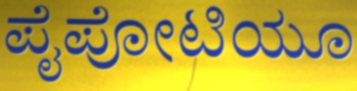
ಪೈಪೋಟಿಯೂ